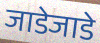
जाडेजाडे